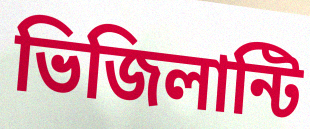
ভিজিলান্টি